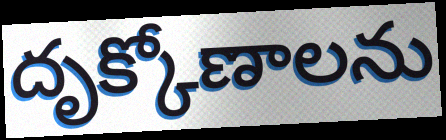
దృక్కోణాలను